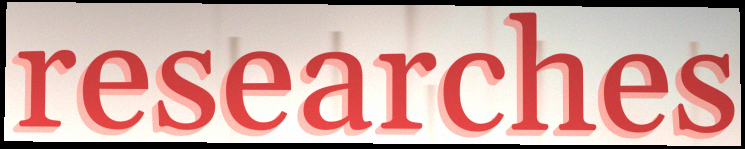
researches